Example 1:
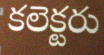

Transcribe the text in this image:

కలెక్టరు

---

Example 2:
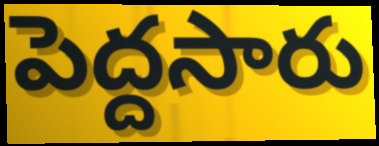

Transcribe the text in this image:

పెద్దసారు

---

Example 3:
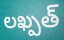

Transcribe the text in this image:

లఖ్పత్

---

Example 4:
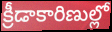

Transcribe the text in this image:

క్రీడాకారిణుల్లో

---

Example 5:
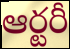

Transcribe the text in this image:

ఆర్టరీ